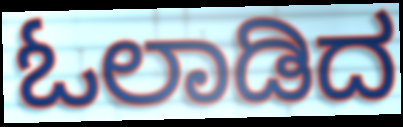
ಓಲಾಡಿದ